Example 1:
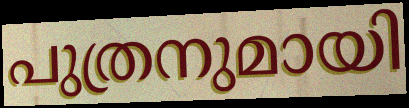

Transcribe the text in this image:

പുത്രനുമായി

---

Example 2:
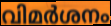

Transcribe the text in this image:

വിമർശനം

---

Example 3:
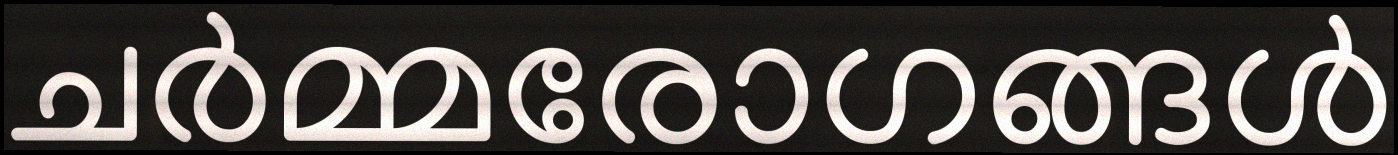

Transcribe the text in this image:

ചർമ്മരോഗങ്ങൾ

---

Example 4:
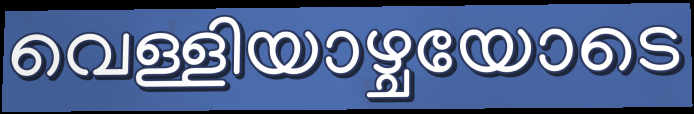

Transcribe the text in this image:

വെള്ളിയാഴ്ചയോടെ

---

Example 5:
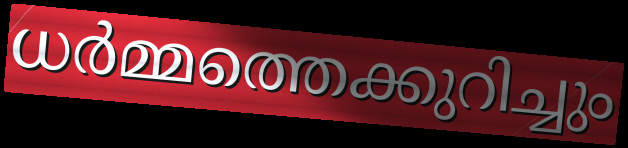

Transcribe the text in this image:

ധർമ്മത്തെക്കുറിച്ചും